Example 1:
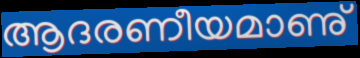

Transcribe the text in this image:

ആദരണീയമാണു്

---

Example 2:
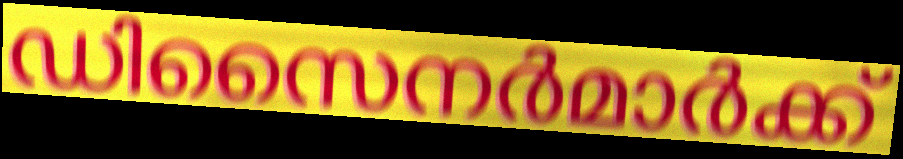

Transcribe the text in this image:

ഡിസൈനർമാർക്ക്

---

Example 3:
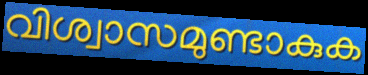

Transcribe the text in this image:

വിശ്വാസമുണ്ടാകുക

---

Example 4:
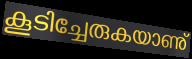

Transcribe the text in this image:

കൂടിച്ചേരുകയാണു്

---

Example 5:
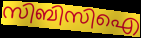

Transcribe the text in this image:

സിബിസിഐ